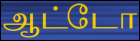
ஆட்டோ